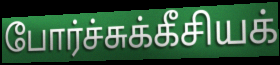
போர்ச்சுக்கீசியக்